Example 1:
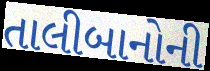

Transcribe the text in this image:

તાલીબાનોની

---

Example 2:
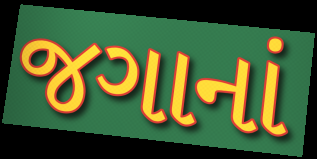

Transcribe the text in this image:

જગાનાં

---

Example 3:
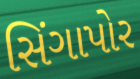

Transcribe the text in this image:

સિંગાપોર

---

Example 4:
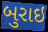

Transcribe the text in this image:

બુરાઇ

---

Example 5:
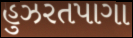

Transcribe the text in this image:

હુઝરતપાગા